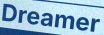
Dreamer